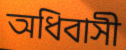
অধিবাসী